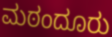
ಮಠಂದೂರು